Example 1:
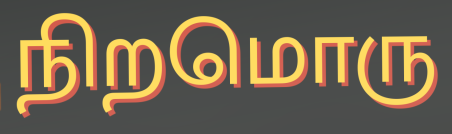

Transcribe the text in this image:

நிறமொரு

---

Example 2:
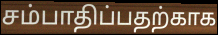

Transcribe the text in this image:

சம்பாதிப்பதற்காக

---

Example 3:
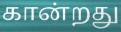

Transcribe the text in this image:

கான்றது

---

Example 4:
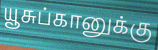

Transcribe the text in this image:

யூசுப்கானுக்கு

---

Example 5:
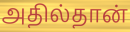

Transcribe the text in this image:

அதில்தான்